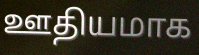
ஊதியமாக